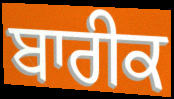
ਬਾਰੀਕ